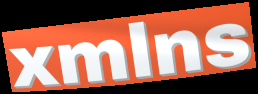
xmlns